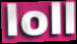
loll